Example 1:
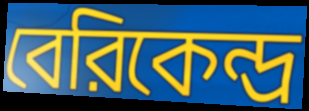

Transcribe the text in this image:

বেরিকেন্দ্র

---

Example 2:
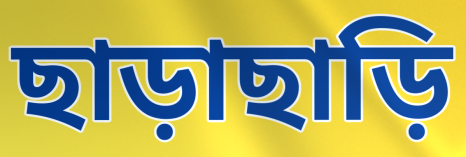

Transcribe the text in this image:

ছাড়াছাড়ি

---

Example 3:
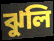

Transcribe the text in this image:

ঝুলি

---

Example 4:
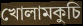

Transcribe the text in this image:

খোলামকুচি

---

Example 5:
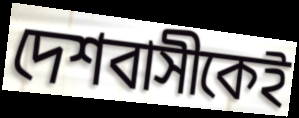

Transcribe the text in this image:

দেশবাসীকেই